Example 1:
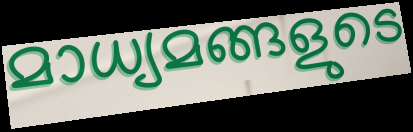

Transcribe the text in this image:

മാധ്യമങ്ങളുടെ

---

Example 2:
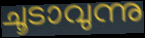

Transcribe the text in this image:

ചൂടാവുന്നു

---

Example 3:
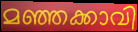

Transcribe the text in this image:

മഞ്ഞക്കാവി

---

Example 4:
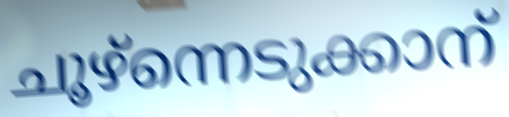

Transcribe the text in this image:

ചൂഴ്ന്നെടുക്കാന്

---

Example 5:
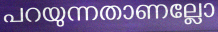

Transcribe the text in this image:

പറയുന്നതാണല്ലോ